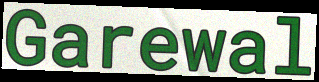
Garewal